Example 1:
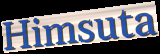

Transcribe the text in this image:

Himsuta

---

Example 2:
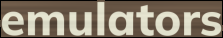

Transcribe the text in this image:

emulators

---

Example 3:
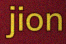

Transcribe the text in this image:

jion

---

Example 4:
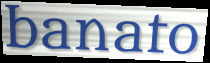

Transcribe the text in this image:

banato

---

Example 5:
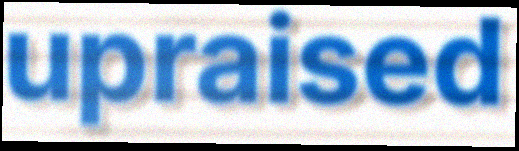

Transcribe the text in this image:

upraised